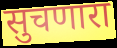
सुचणारा